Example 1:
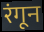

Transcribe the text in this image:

रंगून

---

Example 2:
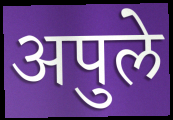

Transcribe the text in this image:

अपुले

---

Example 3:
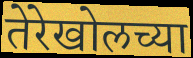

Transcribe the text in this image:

तेरेखोलच्या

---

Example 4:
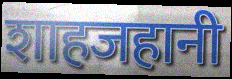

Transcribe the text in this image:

शाहजहानी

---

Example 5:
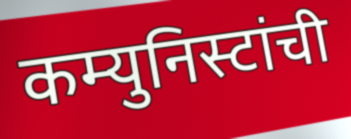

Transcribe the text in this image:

कम्युनिस्टांची